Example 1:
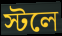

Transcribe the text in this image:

স্টলে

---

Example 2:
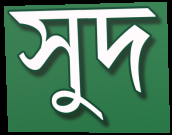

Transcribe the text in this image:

সুদ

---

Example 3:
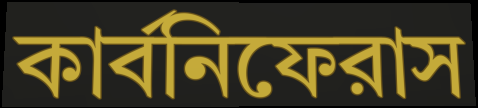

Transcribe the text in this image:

কার্বনিফেরাস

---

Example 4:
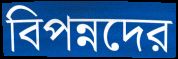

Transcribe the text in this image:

বিপন্নদের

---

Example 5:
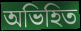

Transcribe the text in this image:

অভিহিত